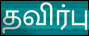
தவிர்பு